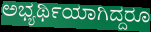
ಅಭ್ಯರ್ಥಿಯಾಗಿದ್ದರೂ